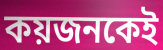
কয়জনকেই